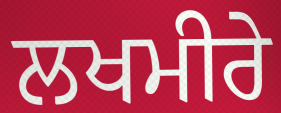
ਲਖਮੀਰੇ